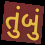
તુંબું